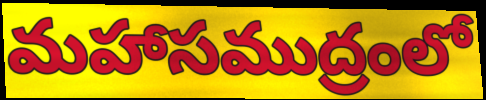
మహాసముద్రంలో